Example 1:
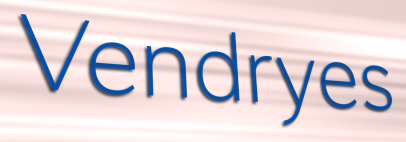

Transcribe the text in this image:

Vendryes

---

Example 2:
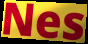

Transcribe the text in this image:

Nes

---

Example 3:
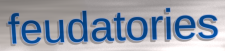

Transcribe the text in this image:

feudatories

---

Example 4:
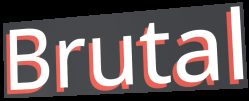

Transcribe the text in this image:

Brutal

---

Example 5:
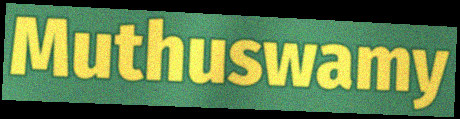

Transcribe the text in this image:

Muthuswamy